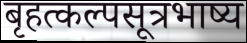
बृहत्कल्पसूत्रभाष्य